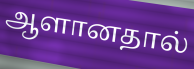
ஆளானதால்